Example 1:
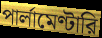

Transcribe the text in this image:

পার্লামেণ্টারি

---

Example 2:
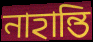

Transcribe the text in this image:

নাহান্তি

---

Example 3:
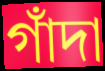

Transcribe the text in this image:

গাঁদা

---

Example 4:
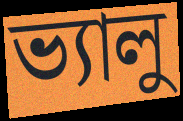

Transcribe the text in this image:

ভ্যালু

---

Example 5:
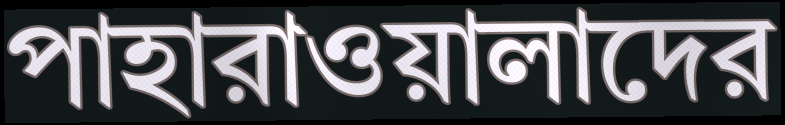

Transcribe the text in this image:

পাহারাওয়ালাদের